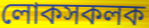
লোকসকলক